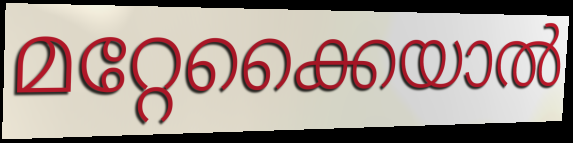
മറ്റേക്കൈയാൽ